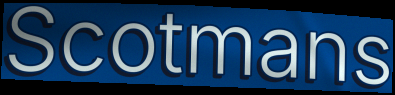
Scotmans